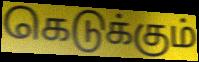
கெடுக்கும்